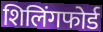
शिलिंगफोर्ड